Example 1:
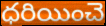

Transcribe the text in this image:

ధరియించె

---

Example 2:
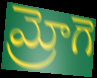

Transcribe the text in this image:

మ్రోగె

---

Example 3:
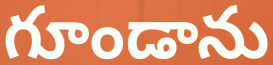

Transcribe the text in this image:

గూండాను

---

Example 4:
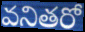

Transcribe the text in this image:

వనితరో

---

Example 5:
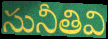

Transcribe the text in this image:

సునీతివి